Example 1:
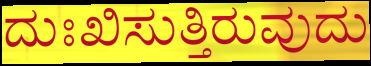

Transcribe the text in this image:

ದುಃಖಿಸುತ್ತಿರುವುದು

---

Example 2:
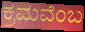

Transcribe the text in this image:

ಕ್ರಮವೆಂಬ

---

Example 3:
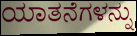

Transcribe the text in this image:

ಯಾತನೆಗಳನ್ನು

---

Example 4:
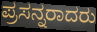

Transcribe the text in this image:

ಪ್ರಸನ್ನರಾದರು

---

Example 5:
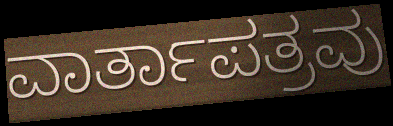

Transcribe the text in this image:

ವಾರ್ತಾಪತ್ರವು